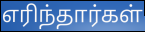
எரிந்தார்கள்